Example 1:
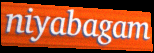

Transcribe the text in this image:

niyabagam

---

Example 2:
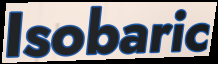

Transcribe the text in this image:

Isobaric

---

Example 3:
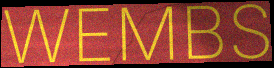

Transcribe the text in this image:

WEMBS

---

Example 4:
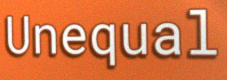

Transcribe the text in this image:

Unequal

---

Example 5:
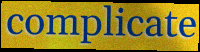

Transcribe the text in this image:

complicate